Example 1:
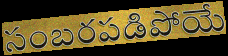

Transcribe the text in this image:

సంబరపడిపోయే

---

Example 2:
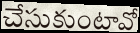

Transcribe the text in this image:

చేసుకుంటావో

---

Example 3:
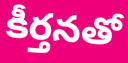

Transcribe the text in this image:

కీర్తనతో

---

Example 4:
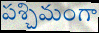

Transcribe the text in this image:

పశ్చిమంగా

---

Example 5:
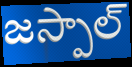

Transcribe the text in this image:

జస్పాల్